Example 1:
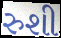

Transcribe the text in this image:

રુશી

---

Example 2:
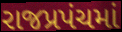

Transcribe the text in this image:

રાજપ્રપંચમાં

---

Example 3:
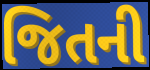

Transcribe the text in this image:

જિતની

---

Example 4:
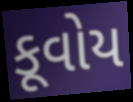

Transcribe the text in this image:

કૂવોય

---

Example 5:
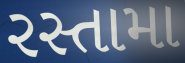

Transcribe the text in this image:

રસ્તામા